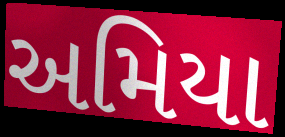
અમિયા